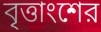
বৃত্তাংশের